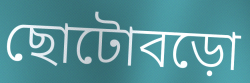
ছোটোবড়ো